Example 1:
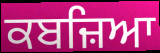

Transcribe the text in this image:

ਕਬਜ਼ਿਆ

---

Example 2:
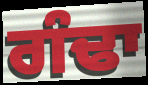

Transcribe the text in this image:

ਗੰਢਾ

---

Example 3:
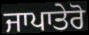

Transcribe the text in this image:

ਜਾਪਾਤੇਰੋ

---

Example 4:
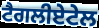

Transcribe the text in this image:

ਟੈਗਲੀਏਟੇਲ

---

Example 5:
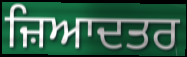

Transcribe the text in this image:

ਜ਼ਿਆਦਤਰ